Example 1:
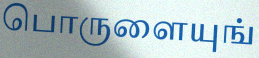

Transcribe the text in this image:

பொருளையுங்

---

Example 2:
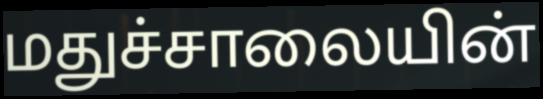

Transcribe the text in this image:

மதுச்சாலையின்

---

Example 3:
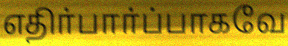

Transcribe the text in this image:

எதிர்பார்ப்பாகவே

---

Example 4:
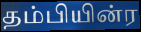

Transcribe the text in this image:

தம்பியின்ர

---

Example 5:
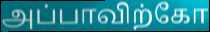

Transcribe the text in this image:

அப்பாவிற்கோ